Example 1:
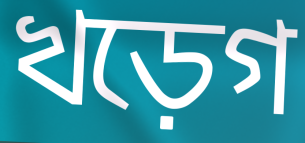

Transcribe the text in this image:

খড়েগ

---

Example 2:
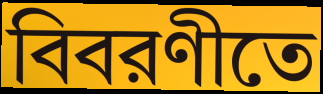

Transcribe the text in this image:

বিবরণীতে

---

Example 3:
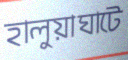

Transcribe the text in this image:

হালুয়াঘাটে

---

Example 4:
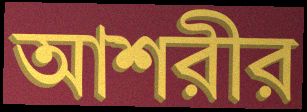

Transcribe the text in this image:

আশরীর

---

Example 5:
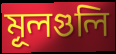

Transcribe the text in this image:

মূলগুলি